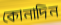
কোনাদিন